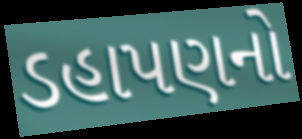
ડહાપણનો